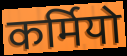
कर्मियो